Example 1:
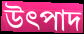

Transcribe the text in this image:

উৎপাদ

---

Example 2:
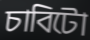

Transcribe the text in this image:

চাবিটো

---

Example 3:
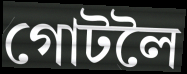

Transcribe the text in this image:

গোটলৈ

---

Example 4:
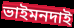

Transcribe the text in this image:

ভাইমনদাই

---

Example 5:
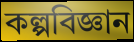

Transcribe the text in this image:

কল্পবিজ্ঞান